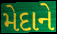
મેદાને